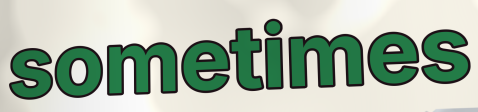
sometimes